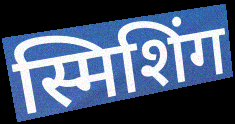
स्मिशिंग